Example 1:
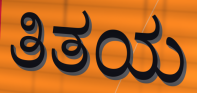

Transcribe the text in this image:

ತಿತಯ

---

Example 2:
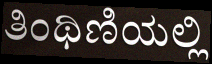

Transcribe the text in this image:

ತಿಂಥಿಣಿಯಲ್ಲಿ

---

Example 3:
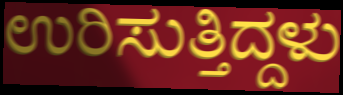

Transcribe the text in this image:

ಉರಿಸುತ್ತಿದ್ದಳು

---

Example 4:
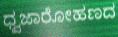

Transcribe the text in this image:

ಧ್ವಜಾರೋಹಣದ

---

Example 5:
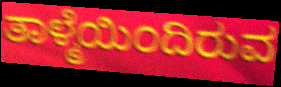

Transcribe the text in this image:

ತಾಳ್ಮೆಯಿಂದಿರುವ